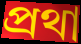
প্রথা